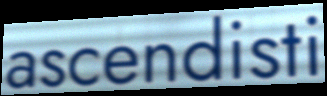
ascendisti